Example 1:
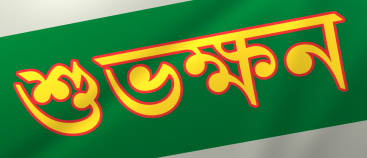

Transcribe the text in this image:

শুভক্ষন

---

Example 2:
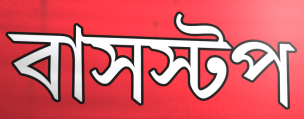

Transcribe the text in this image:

বাসস্টপ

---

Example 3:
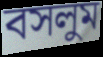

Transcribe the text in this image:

বসলুম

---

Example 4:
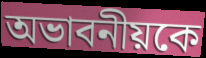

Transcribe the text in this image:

অভাবনীয়কে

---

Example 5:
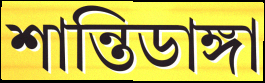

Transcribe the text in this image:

শান্তিডাঙ্গা